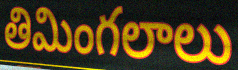
తిమింగలాలు